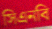
সিএনবি